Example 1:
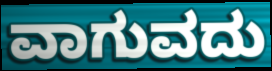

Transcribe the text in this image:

ವಾಗುವದು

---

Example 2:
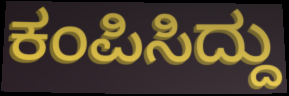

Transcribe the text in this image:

ಕಂಪಿಸಿದ್ದು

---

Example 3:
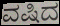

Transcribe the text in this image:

ವಷಿದ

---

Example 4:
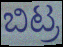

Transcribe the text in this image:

ಬಿಟ್ರ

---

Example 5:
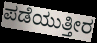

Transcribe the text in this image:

ಪಡೆಯುತ್ತೀರ